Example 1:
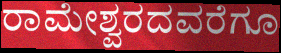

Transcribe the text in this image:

ರಾಮೇಶ್ವರದವರೆಗೂ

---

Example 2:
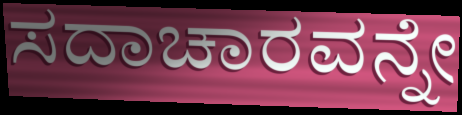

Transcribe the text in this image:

ಸದಾಚಾರವನ್ನೇ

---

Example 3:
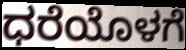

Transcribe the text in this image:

ಧರೆಯೊಳಗೆ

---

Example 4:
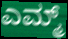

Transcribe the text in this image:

ಎಮ್ಮ್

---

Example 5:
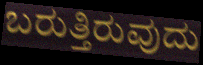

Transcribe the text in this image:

ಬರುತ್ತಿರುವುದು